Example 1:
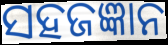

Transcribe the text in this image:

ସହଜଜ୍ଞାନ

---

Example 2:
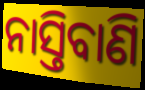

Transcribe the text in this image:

ନାସ୍ତିବାଣି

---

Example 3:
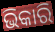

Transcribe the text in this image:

ଭିକାରି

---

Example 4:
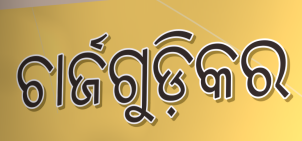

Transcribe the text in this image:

ଚାର୍ଜଗୁଡ଼ିକର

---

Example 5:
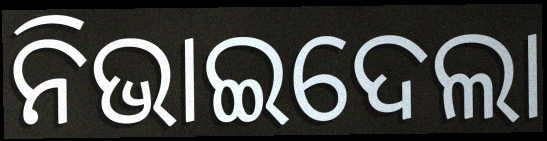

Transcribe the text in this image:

ନିଭାଇଦେଲା